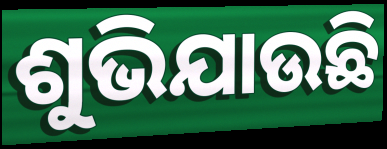
ଶୁଭିଯାଉଛି